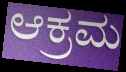
ಆಕ್ರಮ